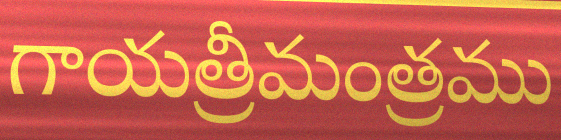
గాయత్రీమంత్రము